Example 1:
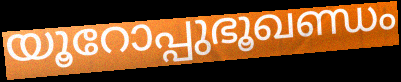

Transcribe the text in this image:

യൂറോപ്പുഭൂഖണ്ഡം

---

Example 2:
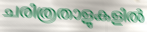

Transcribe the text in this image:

ചരിത്രതാളുകളിൽ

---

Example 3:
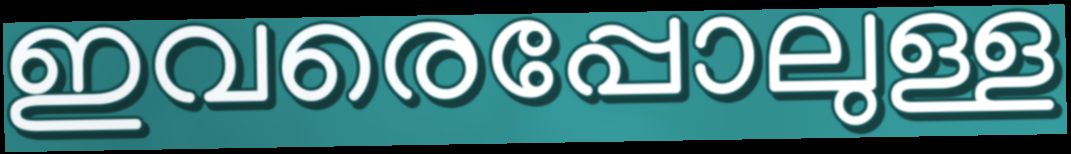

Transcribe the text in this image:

ഇവരെപ്പോലുള്ള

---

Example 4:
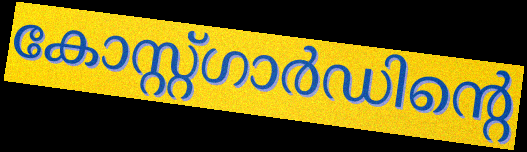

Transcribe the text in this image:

കോസ്റ്റ്ഗാർഡിന്റെ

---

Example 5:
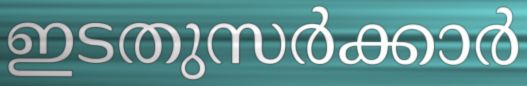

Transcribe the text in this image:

ഇടതുസർക്കാർ